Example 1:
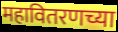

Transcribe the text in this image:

महावितरणच्या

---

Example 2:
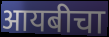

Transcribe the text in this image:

आयबीचा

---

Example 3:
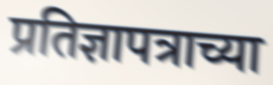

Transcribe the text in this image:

प्रतिज्ञापत्राच्या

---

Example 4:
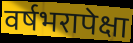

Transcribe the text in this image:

वर्षभरापेक्षा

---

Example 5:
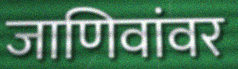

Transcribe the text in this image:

जाणिवांवर